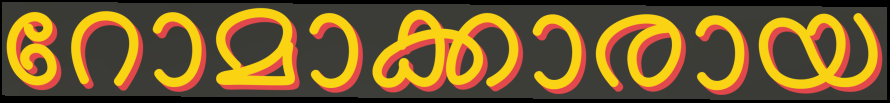
റോമാക്കാരായ